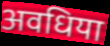
अवधिया